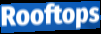
Rooftops